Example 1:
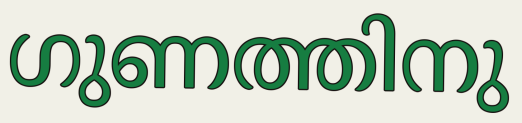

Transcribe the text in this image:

ഗുണത്തിനു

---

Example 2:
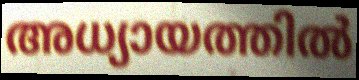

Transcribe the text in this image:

അധ്യായത്തിൽ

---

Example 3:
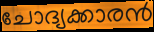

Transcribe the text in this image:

ചോദ്യക്കാരൻ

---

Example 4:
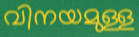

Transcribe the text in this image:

വിനയമുള്ള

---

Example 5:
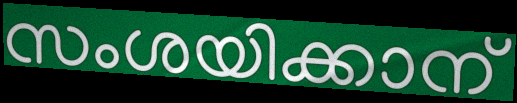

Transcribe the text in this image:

സംശയിക്കാന്